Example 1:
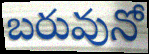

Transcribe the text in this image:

బరువునో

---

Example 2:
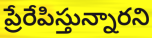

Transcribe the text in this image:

ప్రేరేపిస్తున్నారని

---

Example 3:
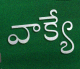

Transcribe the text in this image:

వాక్యే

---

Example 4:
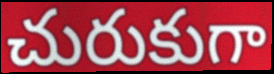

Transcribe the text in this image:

చురుకుగా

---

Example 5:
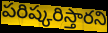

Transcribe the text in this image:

పరిష్కరిస్తారని